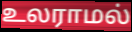
உலராமல்